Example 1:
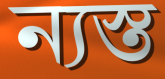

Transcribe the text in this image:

ন্যস্ত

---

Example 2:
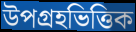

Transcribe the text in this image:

উপগ্রহভিত্তিক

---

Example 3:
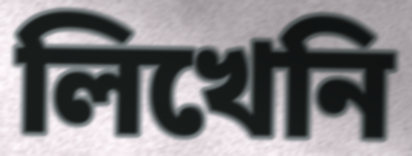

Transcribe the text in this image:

লিখেনি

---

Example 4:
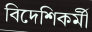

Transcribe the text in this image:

বিদেশিকর্মী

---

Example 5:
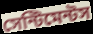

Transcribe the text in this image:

সেন্টিমেন্টস